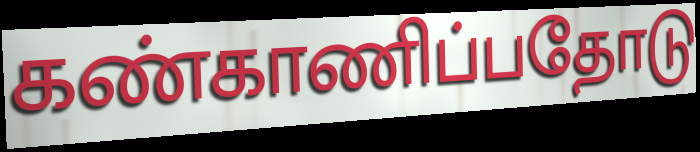
கண்காணிப்பதோடு